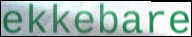
ekkebare